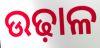
ଉଢ଼ାଳ